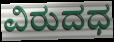
ವಿರುದಧ